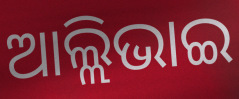
ଆଲ୍ଲିଭାଇ